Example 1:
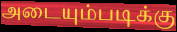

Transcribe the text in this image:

அடையும்படிக்கு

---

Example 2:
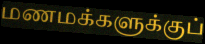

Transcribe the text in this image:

மணமக்களுக்குப்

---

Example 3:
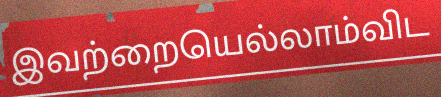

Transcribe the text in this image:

இவற்றையெல்லாம்விட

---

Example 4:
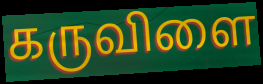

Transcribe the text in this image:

கருவிளை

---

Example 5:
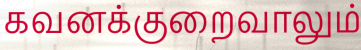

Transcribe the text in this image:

கவனக்குறைவாலும்